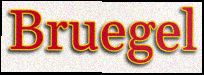
Bruegel